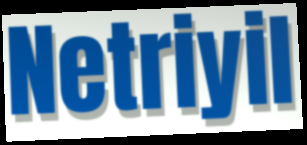
Netriyil